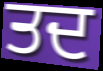
ਤਦ